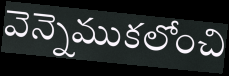
వెన్నెముకలోంచి